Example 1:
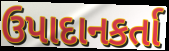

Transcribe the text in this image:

ઉપાદાનકર્તા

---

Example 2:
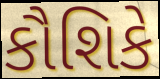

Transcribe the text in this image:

કૌશિકે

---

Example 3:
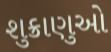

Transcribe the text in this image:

શુક્રાણુઓ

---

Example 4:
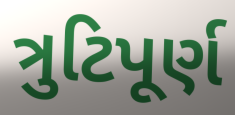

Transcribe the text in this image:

ત્રુટિપૂર્ણ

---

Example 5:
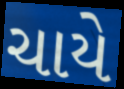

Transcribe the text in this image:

ચાયે